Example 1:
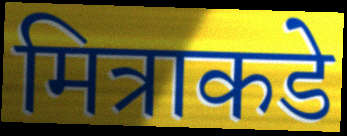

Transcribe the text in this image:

मित्राकडे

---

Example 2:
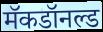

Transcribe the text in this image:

मॅकडॉनल्ड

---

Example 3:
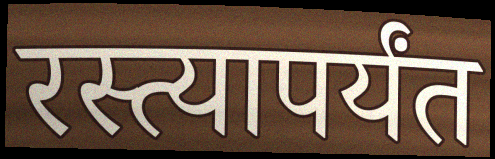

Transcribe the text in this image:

रस्त्यापर्यंत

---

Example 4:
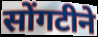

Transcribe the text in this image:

सोंगटीने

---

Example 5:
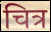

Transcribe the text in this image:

चित्र